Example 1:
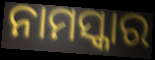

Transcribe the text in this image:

ନାମସ୍କାର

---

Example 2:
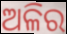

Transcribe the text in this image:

ଅଳିର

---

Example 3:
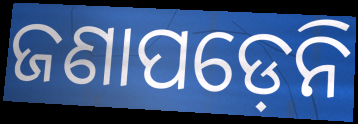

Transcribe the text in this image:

ଜଣାପଡ଼େନି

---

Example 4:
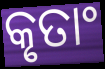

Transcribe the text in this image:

କୃତାଂ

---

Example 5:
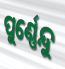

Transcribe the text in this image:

ପୁର୍ଣ୍ଣେନ୍ଦୁ